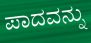
ಪಾದವನ್ನು